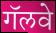
गॅलवे